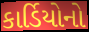
કાર્ડિયોનો